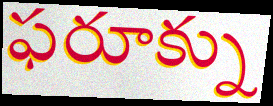
ఫరూక్ను